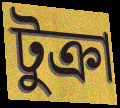
টুক্রা